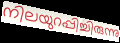
നിലയുറപ്പിച്ചിരുന്നു